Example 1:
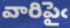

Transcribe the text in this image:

వారిపైఁ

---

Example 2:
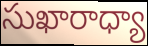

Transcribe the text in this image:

సుఖారాధ్యా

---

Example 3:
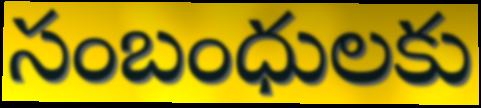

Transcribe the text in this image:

సంబంధులకు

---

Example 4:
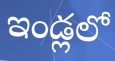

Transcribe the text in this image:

ఇండ్లలో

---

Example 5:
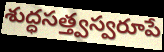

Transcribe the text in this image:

శుద్ధసత్త్వస్వరూపే